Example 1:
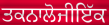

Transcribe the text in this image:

ਤਕਨਾਲੋਜੀਇੱਕ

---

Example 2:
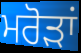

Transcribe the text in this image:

ਮਰੋੜਾਂ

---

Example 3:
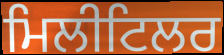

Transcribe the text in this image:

ਮਿਲੀਟਿਲਰ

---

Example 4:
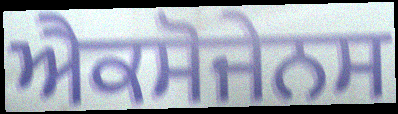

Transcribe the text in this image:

ਐਕਸੋਜੇਨਸ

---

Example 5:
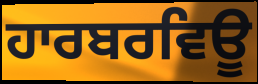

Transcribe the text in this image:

ਹਾਰਬਰਵਿਊ